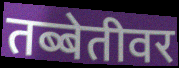
तब्बेतीवर